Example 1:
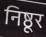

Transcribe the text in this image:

निष्ठूर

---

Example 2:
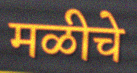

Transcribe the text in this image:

मळीचे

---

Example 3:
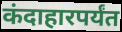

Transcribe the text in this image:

कंदाहारपर्यंत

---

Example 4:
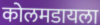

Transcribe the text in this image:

कोलमडायला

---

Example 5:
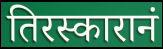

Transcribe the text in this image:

तिरस्कारानं